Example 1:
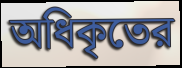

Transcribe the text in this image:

অধিকৃতের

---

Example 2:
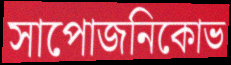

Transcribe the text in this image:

সাপোজনিকোভ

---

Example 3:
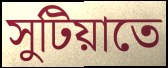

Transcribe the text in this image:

সুটিয়াতে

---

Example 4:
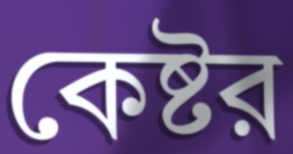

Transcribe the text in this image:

কেষ্টর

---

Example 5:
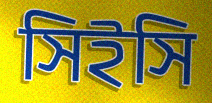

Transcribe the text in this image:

সিইসি